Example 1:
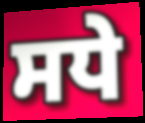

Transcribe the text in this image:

ਸਧੇ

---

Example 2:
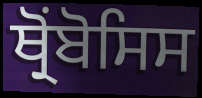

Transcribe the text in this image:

ਥ੍ਰੋਂਬੋਸਿਸ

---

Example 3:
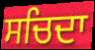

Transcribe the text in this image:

ਸਚਿਦਾ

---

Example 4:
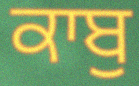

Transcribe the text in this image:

ਕਾਬੁ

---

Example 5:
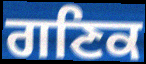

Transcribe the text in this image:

ਗਣਿਕ